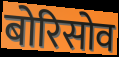
बोरिसोव